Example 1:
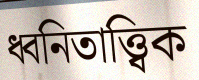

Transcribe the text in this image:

ধ্বনিতাত্ত্বিক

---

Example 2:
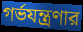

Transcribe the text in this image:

গর্ভযন্ত্রণার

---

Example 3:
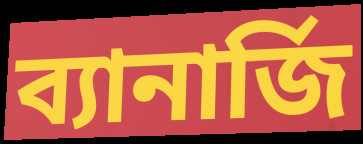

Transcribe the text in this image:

ব্যানার্জি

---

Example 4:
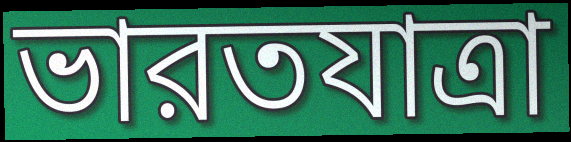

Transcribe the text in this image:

ভারতযাত্রা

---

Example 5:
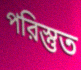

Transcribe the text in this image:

পরিস্তুত